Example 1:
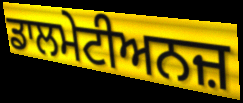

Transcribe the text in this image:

ਡਾਲਮੇਟੀਅਨਜ਼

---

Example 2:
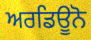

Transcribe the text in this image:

ਅਰਡਿਊਨੋ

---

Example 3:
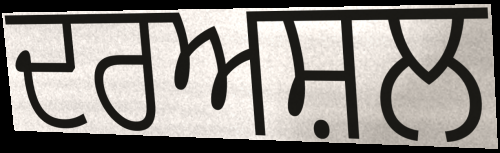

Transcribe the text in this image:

ਦਰਅਸ਼ਲ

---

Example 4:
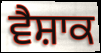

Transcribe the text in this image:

ਵੈਸ਼ਾਕ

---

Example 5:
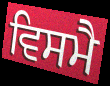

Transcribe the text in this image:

ਵਿਸਮੈ